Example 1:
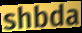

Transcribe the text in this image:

shbda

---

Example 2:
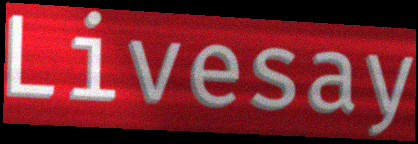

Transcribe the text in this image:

Livesay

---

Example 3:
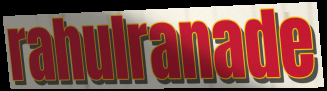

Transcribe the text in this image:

rahulranade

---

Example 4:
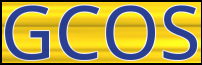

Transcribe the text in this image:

GCOS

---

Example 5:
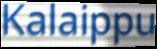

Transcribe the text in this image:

Kalaippu